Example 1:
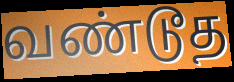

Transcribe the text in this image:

வண்டூத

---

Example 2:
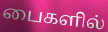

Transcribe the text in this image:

பைகளில்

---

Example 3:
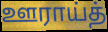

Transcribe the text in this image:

ஊராய்த்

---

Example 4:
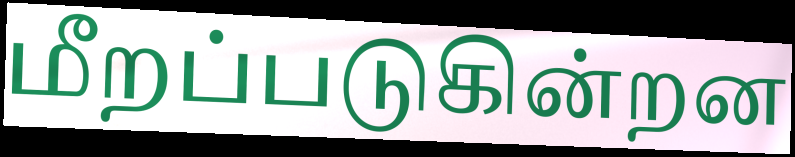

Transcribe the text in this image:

மீறப்படுகின்றன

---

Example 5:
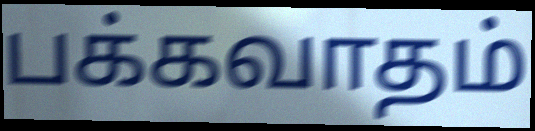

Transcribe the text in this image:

பக்கவாதம்